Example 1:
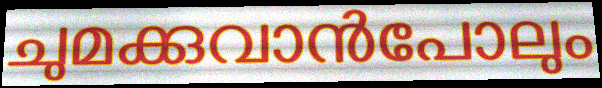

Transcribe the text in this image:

ചുമക്കുവാൻപോലും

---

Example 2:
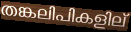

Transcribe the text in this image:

തങ്കലിപികളില്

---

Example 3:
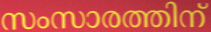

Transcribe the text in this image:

സംസാരത്തിന്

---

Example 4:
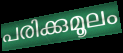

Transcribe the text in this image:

പരിക്കുമൂലം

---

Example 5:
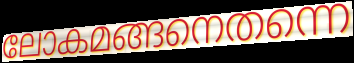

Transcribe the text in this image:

ലോകമങ്ങനെതന്നെ